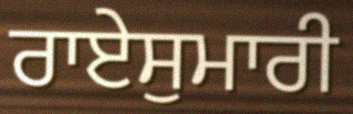
ਰਾਏਸੁਮਾਰੀ